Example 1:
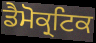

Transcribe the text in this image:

ਡੈਮੋਕ੍ਰਟਿਕ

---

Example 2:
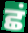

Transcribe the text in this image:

ਛਂ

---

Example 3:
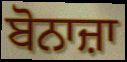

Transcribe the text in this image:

ਬੋਨਾਜ਼ਾ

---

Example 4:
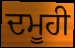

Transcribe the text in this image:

ਦਮੂਹੀ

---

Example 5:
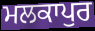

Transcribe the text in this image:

ਮਲਕਾਪੁਰ